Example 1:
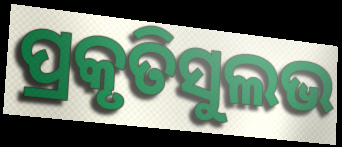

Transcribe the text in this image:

ପ୍ରକୃତିସୁଲଭ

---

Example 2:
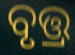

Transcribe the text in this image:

ବୃତ୍ତ୍ର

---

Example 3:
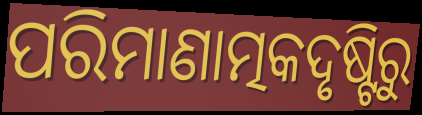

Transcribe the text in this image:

ପରିମାଣାତ୍ମକଦୃଷ୍ଟିରୁ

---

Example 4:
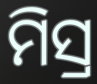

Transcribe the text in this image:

ମିସ୍ର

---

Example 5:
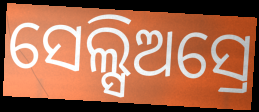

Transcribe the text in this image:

ସେଲ୍ସିଅସ୍ରେ